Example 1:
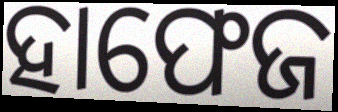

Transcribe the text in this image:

ହାଫେଜ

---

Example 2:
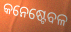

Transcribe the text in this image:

କନେଷ୍ଟେବଳ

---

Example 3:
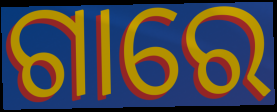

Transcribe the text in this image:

ଗାରେ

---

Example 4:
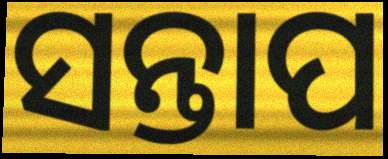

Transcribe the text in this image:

ସନ୍ତାପ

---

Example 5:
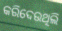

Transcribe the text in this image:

କରିଦେଉଥିଲି